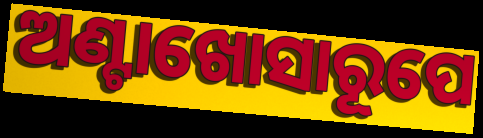
ଅଣ୍ଟାଖୋସାରୂପେ